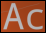
Ac